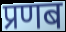
प्रणब